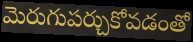
మెరుగుపర్చుకోవడంతో